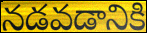
నడవడానికి